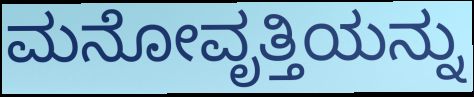
ಮನೋವೃತ್ತಿಯನ್ನು